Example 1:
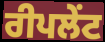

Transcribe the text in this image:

ਰੀਪਲੇਂਟ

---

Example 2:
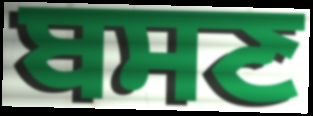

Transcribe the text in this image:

ਬਸਣ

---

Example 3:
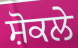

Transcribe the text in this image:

ਸ਼ੋਕਲੇ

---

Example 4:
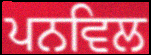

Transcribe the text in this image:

ਪਨਵਿਲ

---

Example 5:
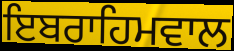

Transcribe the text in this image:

ਇਬਰਾਹਿਮਵਾਲ